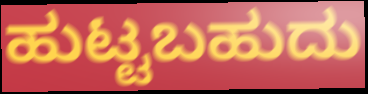
ಹುಟ್ಟಬಹುದು